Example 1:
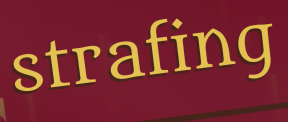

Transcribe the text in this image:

strafing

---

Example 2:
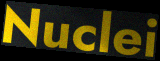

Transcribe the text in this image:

Nuclei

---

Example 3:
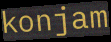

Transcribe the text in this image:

konjam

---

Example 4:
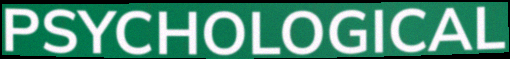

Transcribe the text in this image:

PSYCHOLOGICAL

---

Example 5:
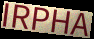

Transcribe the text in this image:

IRPHA